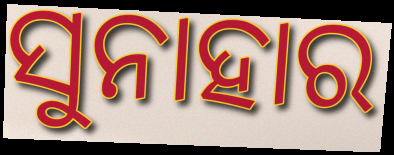
ସୁନାହାର